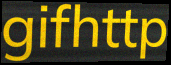
gifhttp